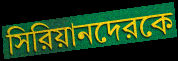
সিরিয়ানদেরকে